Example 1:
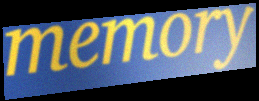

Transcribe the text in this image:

memory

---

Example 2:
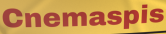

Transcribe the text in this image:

Cnemaspis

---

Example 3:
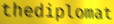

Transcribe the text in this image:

thediplomat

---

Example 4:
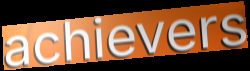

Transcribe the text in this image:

achievers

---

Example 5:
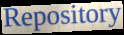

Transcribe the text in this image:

Repository